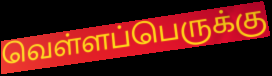
வெள்ளப்பெருக்கு